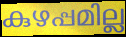
കുഴപ്പമില്ല